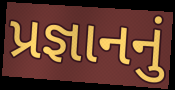
પ્રજ્ઞાનનું